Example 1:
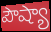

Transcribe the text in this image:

పౌష్యా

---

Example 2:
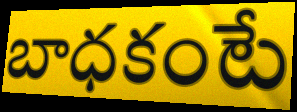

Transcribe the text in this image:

బాధకంటే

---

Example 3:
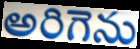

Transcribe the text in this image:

అరిగెను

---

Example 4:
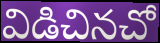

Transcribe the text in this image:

విడిచినచో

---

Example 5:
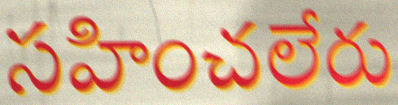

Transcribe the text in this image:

సహించలేరు